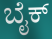
ಬೈಕ್